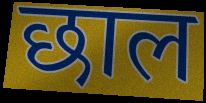
छाल